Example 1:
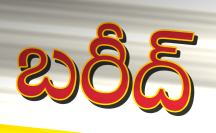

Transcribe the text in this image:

బరీద్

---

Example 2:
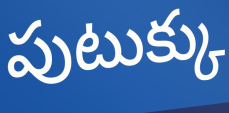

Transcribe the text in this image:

పుటుక్కు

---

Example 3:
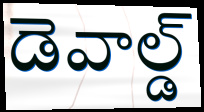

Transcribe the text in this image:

డెవాల్డ్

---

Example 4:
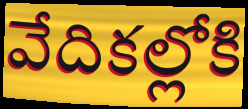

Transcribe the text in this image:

వేదికల్లోకి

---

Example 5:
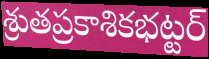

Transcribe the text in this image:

శ్రుతప్రకాశికభట్టర్